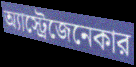
অ্যাস্ট্রেজেনেকার